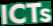
ICTs